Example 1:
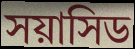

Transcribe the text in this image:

সয়াসিড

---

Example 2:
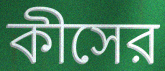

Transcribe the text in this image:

কীসের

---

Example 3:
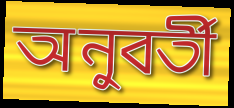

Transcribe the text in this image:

অনুবর্তী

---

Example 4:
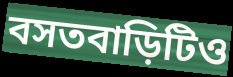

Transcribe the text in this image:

বসতবাড়িটিও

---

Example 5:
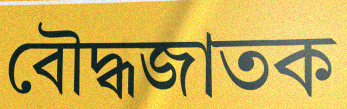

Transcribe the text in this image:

বৌদ্ধজাতক